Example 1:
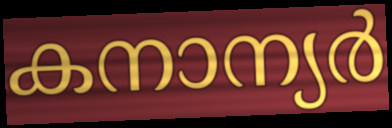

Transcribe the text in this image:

കനാന്യർ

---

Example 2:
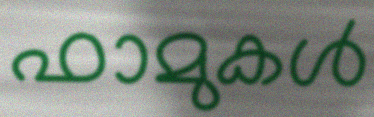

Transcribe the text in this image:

ഫാമുകൾ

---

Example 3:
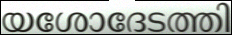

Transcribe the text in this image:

യശോദേടത്തി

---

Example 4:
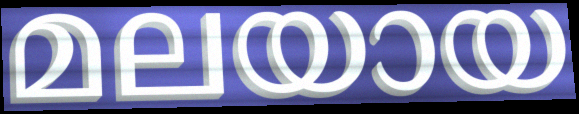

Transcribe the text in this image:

മലയായ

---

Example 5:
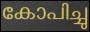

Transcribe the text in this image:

കോപിച്ചു